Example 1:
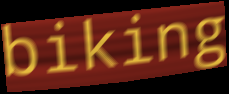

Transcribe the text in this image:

biking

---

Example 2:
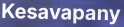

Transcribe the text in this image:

Kesavapany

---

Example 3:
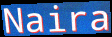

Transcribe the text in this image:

Naira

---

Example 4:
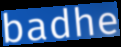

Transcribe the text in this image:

badhe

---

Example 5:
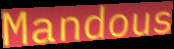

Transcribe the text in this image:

Mandous